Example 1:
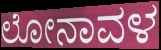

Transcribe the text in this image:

ಲೋನಾವಳ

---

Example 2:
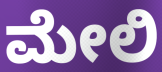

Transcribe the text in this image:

ಮೇಲಿ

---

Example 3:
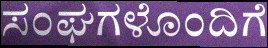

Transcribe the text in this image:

ಸಂಘಗಳೊಂದಿಗೆ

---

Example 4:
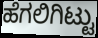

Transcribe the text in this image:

ಹೆಗಲಿಗಿಟ್ಟು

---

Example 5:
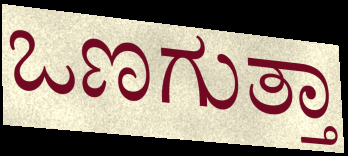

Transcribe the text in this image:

ಒಣಗುತ್ತಾ